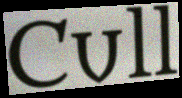
Cull